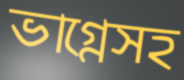
ভাগ্নেসহ